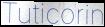
Tuticorin